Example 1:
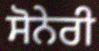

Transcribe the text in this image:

ਸੋਨੇਰੀ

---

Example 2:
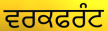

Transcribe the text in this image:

ਵਰਕਫਰੰਟ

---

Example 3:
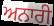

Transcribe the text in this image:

ਅਨਾਰੀ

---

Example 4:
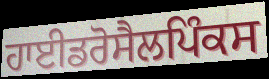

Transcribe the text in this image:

ਹਾਈਡਰੋਸੈਲਪਿੰਕਸ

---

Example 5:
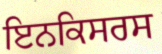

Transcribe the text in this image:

ਇਨਕਿਸਰਸ